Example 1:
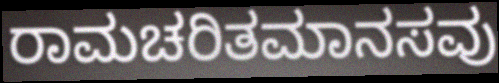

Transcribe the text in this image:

ರಾಮಚರಿತಮಾನಸವು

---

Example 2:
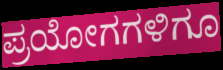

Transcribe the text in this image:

ಪ್ರಯೋಗಗಳಿಗೂ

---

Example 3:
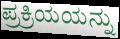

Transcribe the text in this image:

ಪ್ರಕ್ರಿಯಯನ್ನು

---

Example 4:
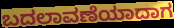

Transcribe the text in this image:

ಬದಲಾವಣೆಯಾದಾಗ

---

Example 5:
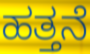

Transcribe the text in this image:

ಹತ್ತನೆ